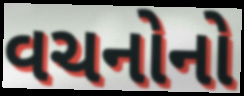
વચનોનો